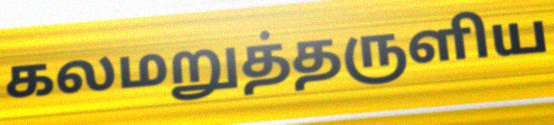
கலமறுத்தருளிய